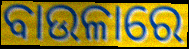
ବାଉଳାରେ